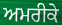
ਅਮਰੀਕੇ